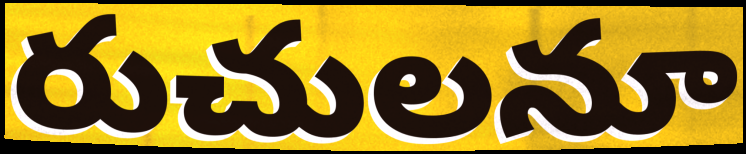
రుచులనూ